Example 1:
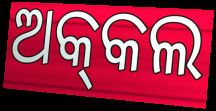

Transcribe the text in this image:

ଅକ୍‍କଲ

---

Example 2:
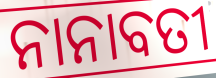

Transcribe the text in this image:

ନାନାବତୀ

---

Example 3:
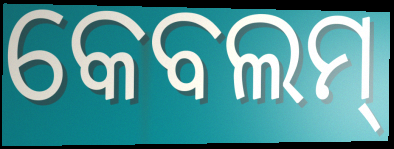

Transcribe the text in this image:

କେବଲମ୍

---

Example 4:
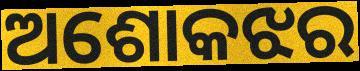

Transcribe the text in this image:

ଅଶୋକଝର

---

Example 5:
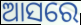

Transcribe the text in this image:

ଆସରେ